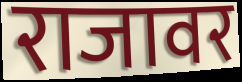
राजावर